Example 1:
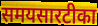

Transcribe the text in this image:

समयसारटीका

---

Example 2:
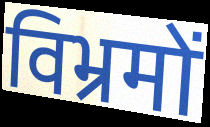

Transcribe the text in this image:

विभ्रमों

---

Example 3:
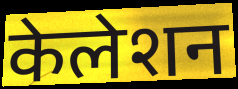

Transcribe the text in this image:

केलेशन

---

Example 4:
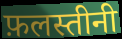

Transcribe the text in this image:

फ़लस्तीनी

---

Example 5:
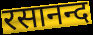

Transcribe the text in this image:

रसानन्द